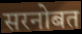
सरनोबत